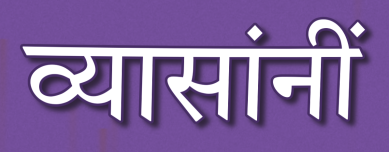
व्यासांनीं